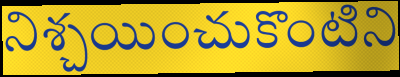
నిశ్చయించుకొంటిని